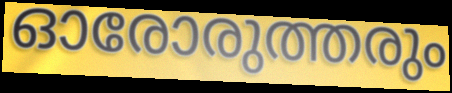
ഓരോരുത്തരും